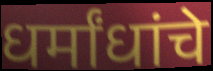
धर्मांधांचे